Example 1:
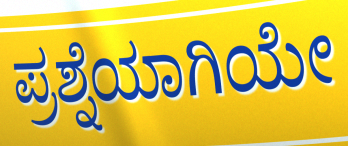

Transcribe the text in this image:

ಪ್ರಶ್ನೆಯಾಗಿಯೇ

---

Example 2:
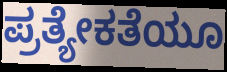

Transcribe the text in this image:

ಪ್ರತ್ಯೇಕತೆಯೂ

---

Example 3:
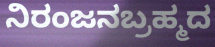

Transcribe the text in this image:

ನಿರಂಜನಬ್ರಹ್ಮದ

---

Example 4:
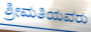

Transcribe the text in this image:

ಶ್ರೀಮತಿಯವರು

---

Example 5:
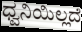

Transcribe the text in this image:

ಧ್ವನಿಯಿಲ್ಲದೆ